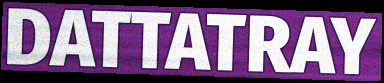
DATTATRAY